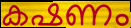
കഷണം